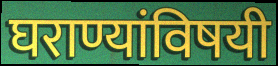
घराण्यांविषयी